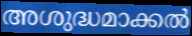
അശുദ്ധമാക്കൽ